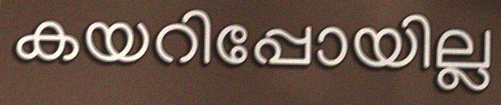
കയറിപ്പോയില്ല